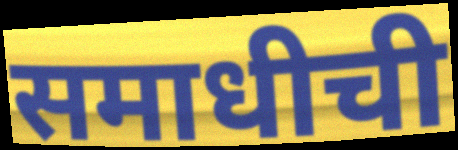
समाधीची